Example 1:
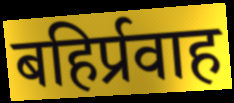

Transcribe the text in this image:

बहिर्प्रवाह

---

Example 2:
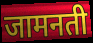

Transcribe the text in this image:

जामनती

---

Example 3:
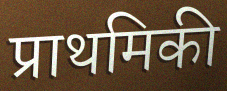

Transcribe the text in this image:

प्राथमिकी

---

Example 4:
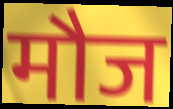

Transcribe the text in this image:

मौज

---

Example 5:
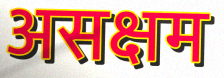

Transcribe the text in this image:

असक्षम